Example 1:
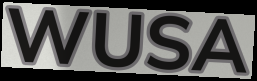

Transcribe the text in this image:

WUSA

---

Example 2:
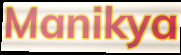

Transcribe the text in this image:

Manikya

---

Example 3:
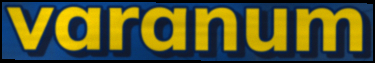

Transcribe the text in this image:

varanum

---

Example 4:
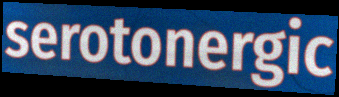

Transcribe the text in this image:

serotonergic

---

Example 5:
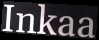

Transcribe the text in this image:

Inkaa